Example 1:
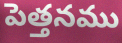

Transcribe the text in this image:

పెత్తనము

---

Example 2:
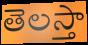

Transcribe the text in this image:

తెలస్తా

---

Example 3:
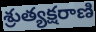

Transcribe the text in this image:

శ్రుత్యక్షరాణి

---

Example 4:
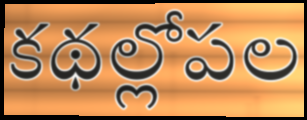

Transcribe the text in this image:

కథల్లోపల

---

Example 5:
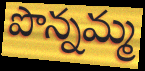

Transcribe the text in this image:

పొన్నమ్మ